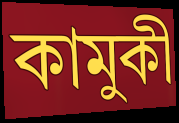
কামুকী